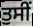
ਤੁਸੀਂ